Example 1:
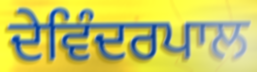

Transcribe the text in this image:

ਦੇਵਿੰਦਰਪਾਲ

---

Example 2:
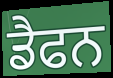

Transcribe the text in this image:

ਡੈਫਨ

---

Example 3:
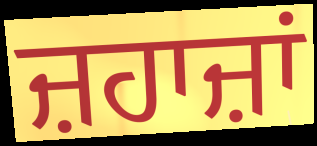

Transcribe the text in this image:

ਜ਼ਹਾਜ਼ਾਂ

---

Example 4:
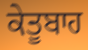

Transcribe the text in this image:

ਕੇਤੂਬਾਹ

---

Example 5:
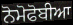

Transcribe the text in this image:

ਨੋਮੋਫੋਬੀਆ